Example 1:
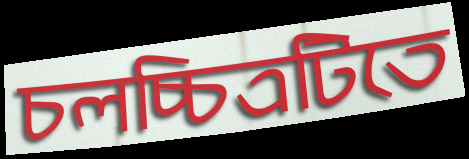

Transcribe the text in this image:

চলচ্চিত্রটিতে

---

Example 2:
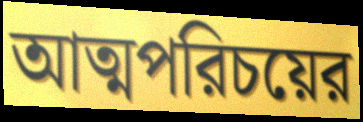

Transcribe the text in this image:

আত্মপরিচয়ের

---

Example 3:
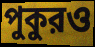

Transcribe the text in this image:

পুকুরও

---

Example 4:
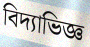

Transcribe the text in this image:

বিদ্যাভিজ্ঞ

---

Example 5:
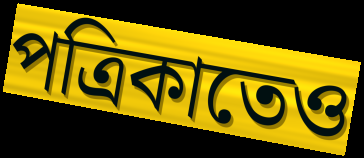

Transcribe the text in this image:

পত্রিকাতেও